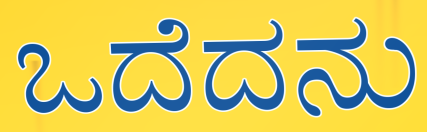
ಒದೆದನು